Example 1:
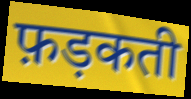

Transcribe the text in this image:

फ़ड़कती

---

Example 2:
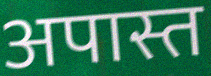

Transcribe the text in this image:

अपास्‍त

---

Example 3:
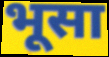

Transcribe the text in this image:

भूसा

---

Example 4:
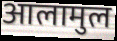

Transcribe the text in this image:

आलामुल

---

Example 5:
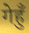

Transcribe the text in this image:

गेहुँ